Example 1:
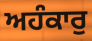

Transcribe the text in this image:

ਅਹੰਕਾਰੁ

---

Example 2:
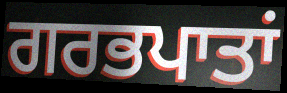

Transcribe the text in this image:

ਗਰਭਪਾਤਾਂ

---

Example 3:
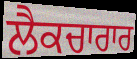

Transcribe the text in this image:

ਲੈਕਚਾਰਾਰ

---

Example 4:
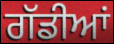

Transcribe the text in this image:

ਗੱਡੀਆਂ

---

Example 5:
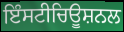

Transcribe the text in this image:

ਇੰਸਟੀਚਿਊਸ਼ਨਲ